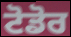
ਟੋਡੋਰ